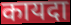
कायदा